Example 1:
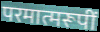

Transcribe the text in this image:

परमात्मरूपीं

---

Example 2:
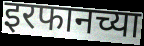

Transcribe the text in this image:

इरफानच्या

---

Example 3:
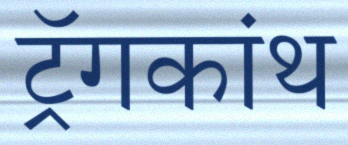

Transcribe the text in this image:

ट्रॅगकांथ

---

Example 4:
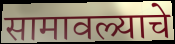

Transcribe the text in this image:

सामावल्याचे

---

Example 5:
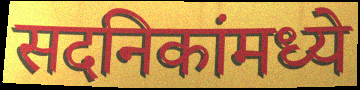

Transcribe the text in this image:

सदनिकांमध्ये